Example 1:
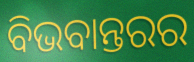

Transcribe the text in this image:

ବିଭବାନ୍ତରର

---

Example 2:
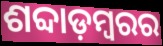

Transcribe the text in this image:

ଶବ୍ଦାଡ଼ମ୍ବରର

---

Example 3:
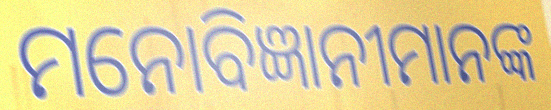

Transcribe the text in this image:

ମନୋବିଜ୍ଞାନୀମାନଙ୍କ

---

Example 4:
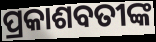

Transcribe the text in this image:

ପ୍ରକାଶବତୀଙ୍କ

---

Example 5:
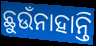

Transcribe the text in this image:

ଛୁଉଁନାହାନ୍ତି